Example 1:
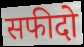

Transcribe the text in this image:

सफीदो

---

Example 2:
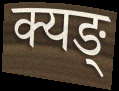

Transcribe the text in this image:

क्यङ्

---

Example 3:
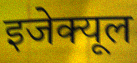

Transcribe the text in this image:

इजेक्यूल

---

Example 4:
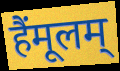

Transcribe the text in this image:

हैंमूलम्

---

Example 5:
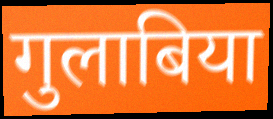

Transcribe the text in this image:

गुलाबिया